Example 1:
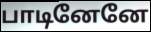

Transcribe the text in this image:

பாடினேனே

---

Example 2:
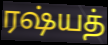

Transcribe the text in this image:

ரஷ்யத்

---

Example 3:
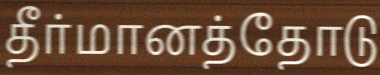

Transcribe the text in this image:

தீர்மானத்தோடு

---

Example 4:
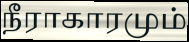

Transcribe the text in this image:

நீராகாரமும்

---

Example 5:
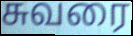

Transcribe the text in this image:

சுவரை